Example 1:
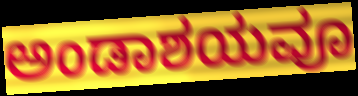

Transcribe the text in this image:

ಅಂಡಾಶಯವೂ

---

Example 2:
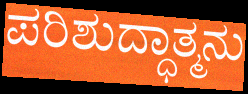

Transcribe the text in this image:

ಪರಿಶುದ್ಧಾತ್ಮನು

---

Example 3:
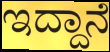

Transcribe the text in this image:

ಇದ್ದಾನೆ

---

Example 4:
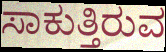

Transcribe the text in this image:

ಸಾಕುತ್ತಿರುವ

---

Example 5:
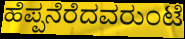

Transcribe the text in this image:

ಹೆಪ್ಪನೆರೆದವರುಂಟೆ